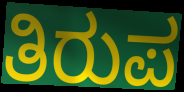
ತಿರುಪ